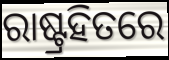
ରାଷ୍ଟ୍ରହିତରେ